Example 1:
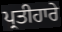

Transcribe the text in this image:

ਪ੍ਰਤੀਹਾਰੇ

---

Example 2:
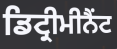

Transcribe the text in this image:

ਡਿਟ੍ਰੀਮੀਨੈਂਟ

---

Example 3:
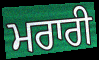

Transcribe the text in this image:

ਮਰਾਰੀ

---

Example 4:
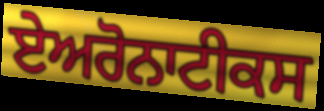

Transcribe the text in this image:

ਏਅਰੋਨਾਟੀਕਸ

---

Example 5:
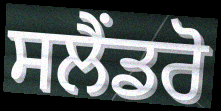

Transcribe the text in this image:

ਸਲੈਂਡਰੋ